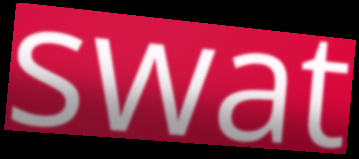
swat